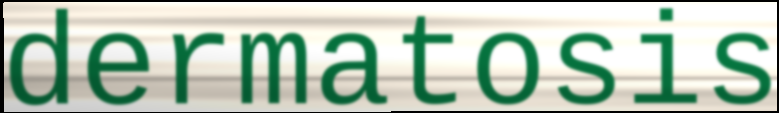
dermatosis